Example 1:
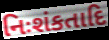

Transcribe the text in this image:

નિઃશંકતાદિ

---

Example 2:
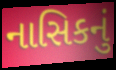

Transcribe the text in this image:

નાસિકનું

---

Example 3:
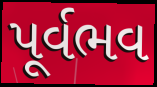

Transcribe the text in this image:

પૂર્વભવ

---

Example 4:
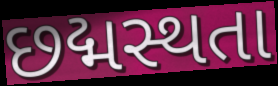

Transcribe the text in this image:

છદ્મસ્થતા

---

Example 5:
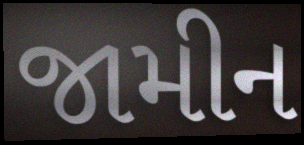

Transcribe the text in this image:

જામીન